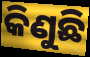
କିଣୁଛି